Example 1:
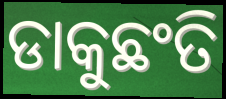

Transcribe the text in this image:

ଡାକୁଛଂତି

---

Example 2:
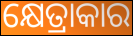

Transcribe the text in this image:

କ୍ଷେତ୍ରାକାର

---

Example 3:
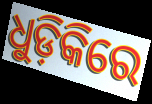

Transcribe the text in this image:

ଧୁଡ଼ିକିରେ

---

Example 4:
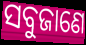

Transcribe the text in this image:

ସବୁଜାଣେ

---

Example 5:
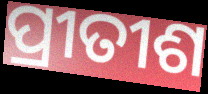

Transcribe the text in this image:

ପ୍ରୀତୀଶ